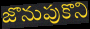
జొనుపుకొని